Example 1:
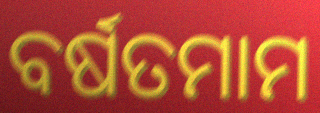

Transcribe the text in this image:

ବର୍ଷତମାମ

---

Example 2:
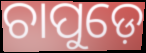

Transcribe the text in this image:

ଚାପୁଡ଼େ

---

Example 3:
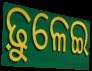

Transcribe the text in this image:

ଢ଼ୁଳେଇ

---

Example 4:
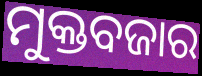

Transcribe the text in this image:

ମୁକ୍ତବଜାର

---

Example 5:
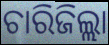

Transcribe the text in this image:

ଚାରିଜିଲ୍ଲା